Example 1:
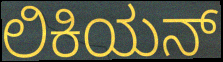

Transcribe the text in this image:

ಲಿಕಿಯನ್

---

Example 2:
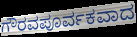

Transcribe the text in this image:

ಗೌರವಪೂರ್ವಕವಾದ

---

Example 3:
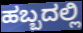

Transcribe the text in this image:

ಹಬ್ಬದಲ್ಲಿ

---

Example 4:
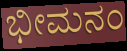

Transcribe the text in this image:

ಭೀಮನಂ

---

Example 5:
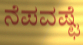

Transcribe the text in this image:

ನೆಪವಷ್ಟೆ